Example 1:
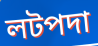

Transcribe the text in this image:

লটপদা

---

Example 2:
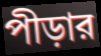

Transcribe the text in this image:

পীড়ার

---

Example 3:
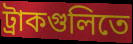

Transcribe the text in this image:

ট্রাকগুলিতে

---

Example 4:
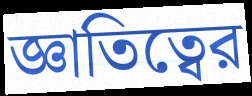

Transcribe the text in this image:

জ্ঞাতিত্বের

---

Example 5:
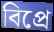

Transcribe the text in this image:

বিপ্রে